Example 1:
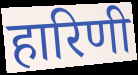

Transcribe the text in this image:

हारिणी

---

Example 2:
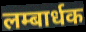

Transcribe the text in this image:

लम्बार्धक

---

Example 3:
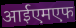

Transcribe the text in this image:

आईएमएफ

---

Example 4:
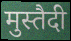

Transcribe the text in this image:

मुस्तैदी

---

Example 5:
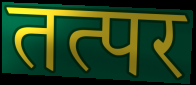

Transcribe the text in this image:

तत्पर